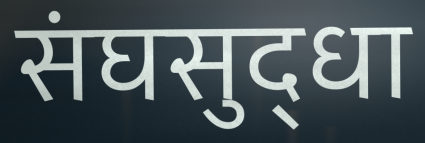
संघसुद्धा